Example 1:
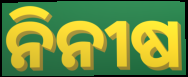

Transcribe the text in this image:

ନିନୀଷ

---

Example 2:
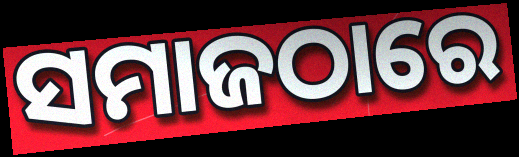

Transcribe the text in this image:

ସମାଜଠାରେ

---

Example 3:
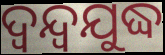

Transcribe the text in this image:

ଦ୍ୱନ୍ଦ୍ୱଯୁଦ୍ଧ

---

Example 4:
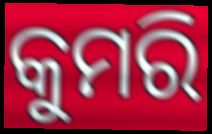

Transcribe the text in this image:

କୁମରି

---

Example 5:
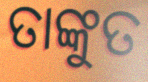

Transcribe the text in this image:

ତାଙ୍କୁତ